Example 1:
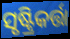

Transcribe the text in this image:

ସୃଷ୍ଟ୍ରିକର୍ତ୍ତା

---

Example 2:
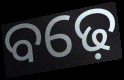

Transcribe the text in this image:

ବଢ଼େ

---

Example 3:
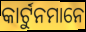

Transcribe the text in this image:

କାର୍ଟୁନମାନେ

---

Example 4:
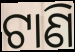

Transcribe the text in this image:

ଟାଣି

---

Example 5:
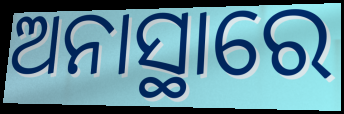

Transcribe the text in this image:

ଅନାସ୍ଥାରେ